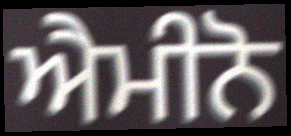
ਐਮੀਨੋ